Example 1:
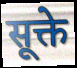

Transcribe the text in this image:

सूक्ते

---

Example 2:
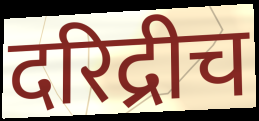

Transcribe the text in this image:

दरिद्रीच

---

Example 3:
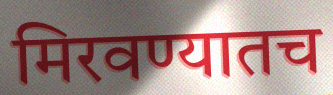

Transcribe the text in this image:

मिरवण्यातच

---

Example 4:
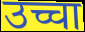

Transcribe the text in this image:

उच्चा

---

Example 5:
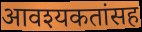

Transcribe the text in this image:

आवश्यकतांसह